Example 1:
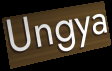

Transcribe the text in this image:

Ungya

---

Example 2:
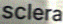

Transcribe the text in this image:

sclera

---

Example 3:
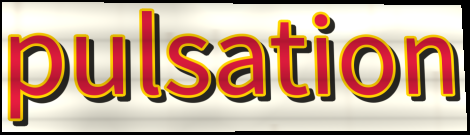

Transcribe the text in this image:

pulsation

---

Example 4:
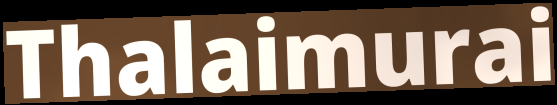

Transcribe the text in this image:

Thalaimurai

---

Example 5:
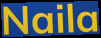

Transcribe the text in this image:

Naila